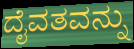
ದೈವತವನ್ನು